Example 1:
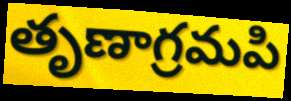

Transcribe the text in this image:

తృణాగ్రమపి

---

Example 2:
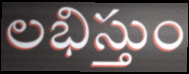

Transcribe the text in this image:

లభిస్తుం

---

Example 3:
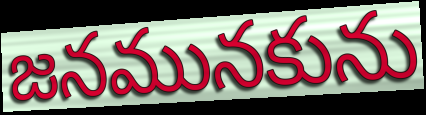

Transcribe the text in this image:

జనమునకును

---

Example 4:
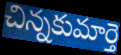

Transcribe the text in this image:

చిన్నకుమార్తె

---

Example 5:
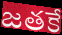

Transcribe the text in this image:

జతకే